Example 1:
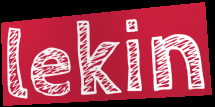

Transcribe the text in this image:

lekin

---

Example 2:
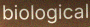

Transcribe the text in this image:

biological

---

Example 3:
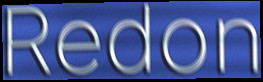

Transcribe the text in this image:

Redon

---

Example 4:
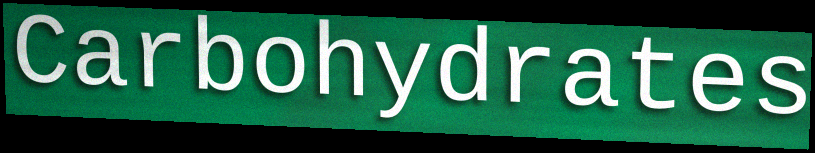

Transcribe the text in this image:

Carbohydrates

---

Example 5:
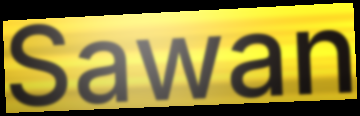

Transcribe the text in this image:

Sawan